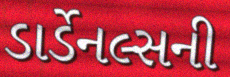
ડાર્ડેનલ્સની